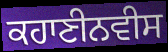
ਕਹਾਣੀਨਵੀਸ